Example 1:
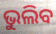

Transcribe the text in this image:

ଭୁଲିବ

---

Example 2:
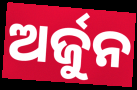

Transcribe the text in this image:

ଅର୍ଜୁନ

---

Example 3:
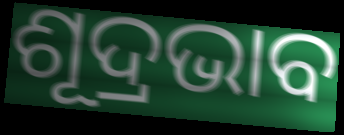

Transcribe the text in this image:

ଶୂଦ୍ରଭାବ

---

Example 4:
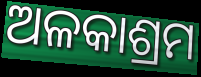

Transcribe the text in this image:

ଅଳକାଶ୍ରମ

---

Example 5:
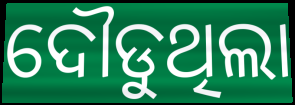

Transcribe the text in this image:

ଦୌଡୁଥିଲା